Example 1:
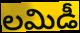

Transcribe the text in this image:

లమిడీ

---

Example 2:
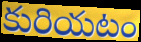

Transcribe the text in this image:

కురియటం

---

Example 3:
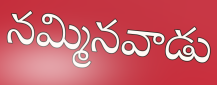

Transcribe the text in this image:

నమ్మినవాడు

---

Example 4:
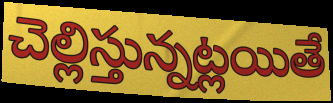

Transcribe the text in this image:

చెల్లిస్తున్నట్లయితే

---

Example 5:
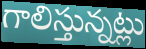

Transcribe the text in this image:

గాలిస్తున్నట్లు